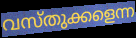
വസ്തുക്കളെന്ന